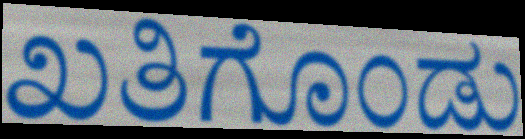
ಖತಿಗೊಂಡು